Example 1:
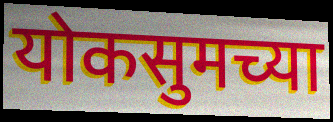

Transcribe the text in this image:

योकसुमच्या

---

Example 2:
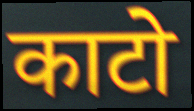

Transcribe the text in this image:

काटो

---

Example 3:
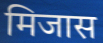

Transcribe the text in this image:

मिजास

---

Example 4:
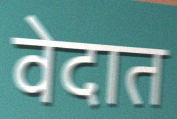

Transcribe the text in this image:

वेदात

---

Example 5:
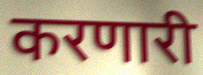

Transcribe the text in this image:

करणारी